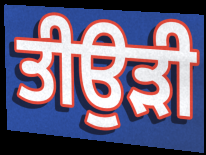
ਤੀਉੜੀ